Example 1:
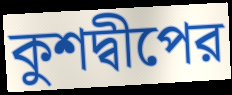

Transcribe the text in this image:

কুশদ্বীপের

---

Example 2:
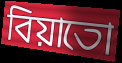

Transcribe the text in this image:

বিয়াতো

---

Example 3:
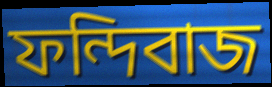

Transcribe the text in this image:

ফন্দিবাজ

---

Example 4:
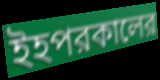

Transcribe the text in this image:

ইহপরকালের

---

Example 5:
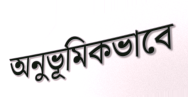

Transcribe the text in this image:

অনুভূমিকভাবে